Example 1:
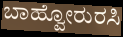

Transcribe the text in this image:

ಬಾಹ್ವೋರುರಸಿ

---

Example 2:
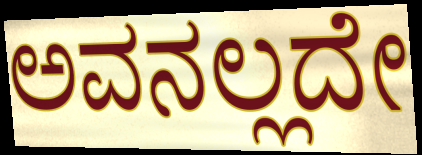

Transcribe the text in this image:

ಅವನಲ್ಲದೇ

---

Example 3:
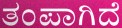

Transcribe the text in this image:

ತಂಪಾಗಿದೆ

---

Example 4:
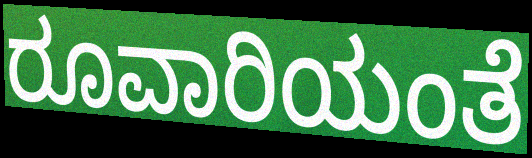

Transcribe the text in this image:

ರೂವಾರಿಯಂತೆ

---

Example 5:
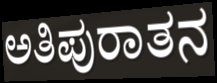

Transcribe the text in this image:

ಅತಿಪುರಾತನ